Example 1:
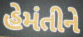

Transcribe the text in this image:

હેમંતીને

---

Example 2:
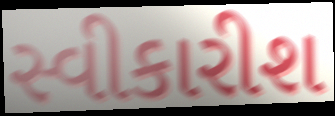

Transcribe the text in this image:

સ્વીકારીશ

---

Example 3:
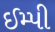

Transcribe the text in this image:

ઈમ્પી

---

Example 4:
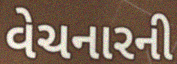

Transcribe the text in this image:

વેચનારની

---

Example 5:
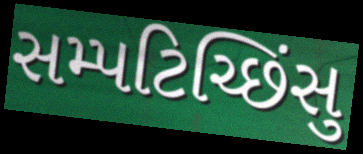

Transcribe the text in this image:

સમ્પટિચ્છિંસુ